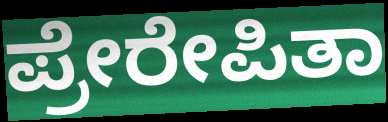
ಪ್ರೇರೇಪಿತಾ